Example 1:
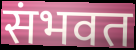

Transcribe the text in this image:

संभवत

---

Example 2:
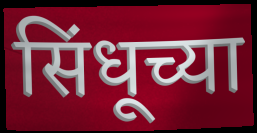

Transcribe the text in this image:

सिंधूच्या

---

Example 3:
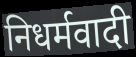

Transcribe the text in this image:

निधर्मवादी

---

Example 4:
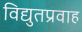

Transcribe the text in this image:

विद्युतप्रवाह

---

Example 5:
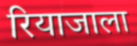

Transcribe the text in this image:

रियाजाला